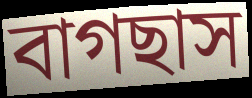
বাগছাস